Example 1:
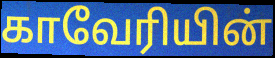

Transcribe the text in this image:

காவேரியின்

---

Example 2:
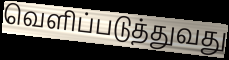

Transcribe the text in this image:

வெளிப்படுத்துவது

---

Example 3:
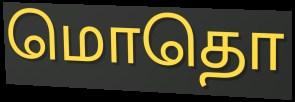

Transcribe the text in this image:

மொதொ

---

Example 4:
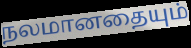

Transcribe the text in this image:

நலமானதையும்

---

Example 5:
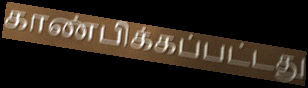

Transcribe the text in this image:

காண்பிக்கப்பட்டது